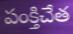
పంక్తిచేత